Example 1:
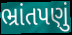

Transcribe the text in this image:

ભ્રાંતપણું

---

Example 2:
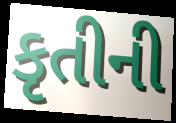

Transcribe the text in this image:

કૃતીની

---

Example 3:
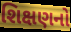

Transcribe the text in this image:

શિક્ષણનો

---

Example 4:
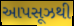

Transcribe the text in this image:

આપસૂઝથી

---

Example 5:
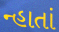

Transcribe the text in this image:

ન્હાતાં